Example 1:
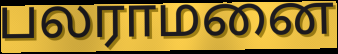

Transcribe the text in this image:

பலராமனை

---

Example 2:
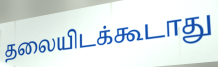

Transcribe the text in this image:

தலையிடக்கூடாது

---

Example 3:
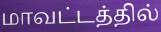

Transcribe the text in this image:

மாவட்டத்தில்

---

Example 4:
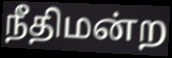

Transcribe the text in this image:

நீதிமன்ற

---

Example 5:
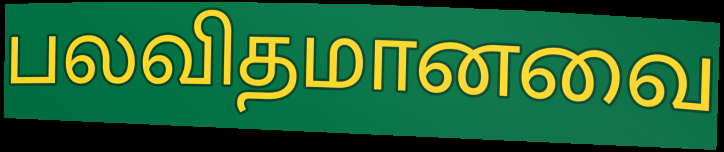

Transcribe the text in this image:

பலவிதமானவை